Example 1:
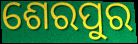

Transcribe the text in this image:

ଶେରପୁର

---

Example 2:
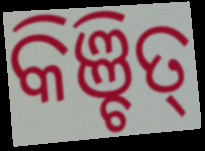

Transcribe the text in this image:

କିଞ୍ଚିତ୍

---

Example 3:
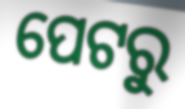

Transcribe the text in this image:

ପେଟରୁ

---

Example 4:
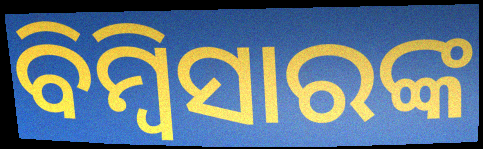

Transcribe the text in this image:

ବିମ୍ବିସାରଙ୍କ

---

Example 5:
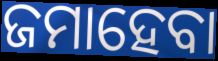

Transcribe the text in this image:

ଜମାହେବା